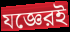
যজ্ঞেরই